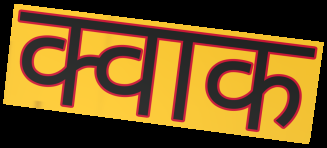
क्वाक